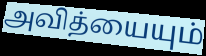
அவித்யையும்